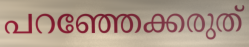
പറഞ്ഞേക്കരുത്